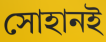
সোহানই